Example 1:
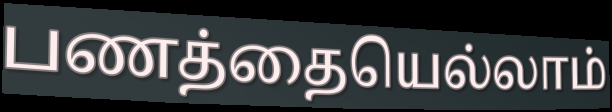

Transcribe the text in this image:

பணத்தையெல்லாம்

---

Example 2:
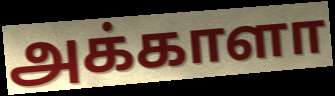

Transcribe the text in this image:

அக்காளா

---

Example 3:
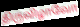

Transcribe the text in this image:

திருவிழாவோ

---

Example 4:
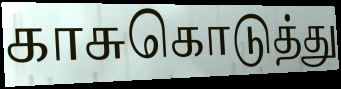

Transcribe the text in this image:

காசுகொடுத்து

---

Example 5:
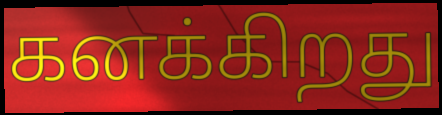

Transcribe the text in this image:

கனக்கிறது